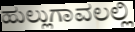
ಹುಲ್ಲುಗಾವಲಲ್ಲಿ